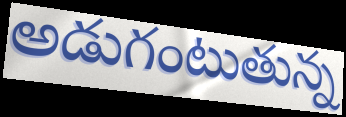
అడుగంటుతున్న